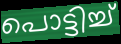
പൊട്ടിച്ച്